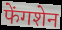
फेंगशेन